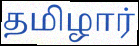
தமிழார்